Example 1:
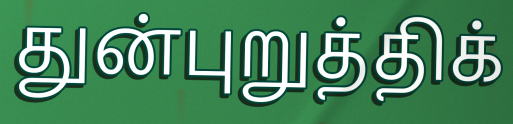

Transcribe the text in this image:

துன்புறுத்திக்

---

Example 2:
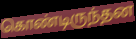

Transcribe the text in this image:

கொண்டிருந்தன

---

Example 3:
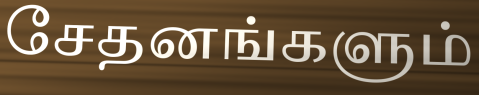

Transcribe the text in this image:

சேதனங்களும்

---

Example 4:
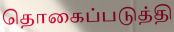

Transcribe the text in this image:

தொகைப்படுத்தி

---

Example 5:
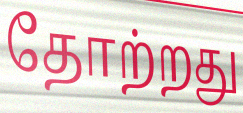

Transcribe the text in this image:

தோற்றது